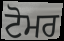
ਟੋਮਰ